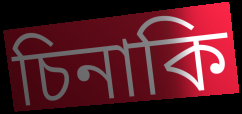
চিনাকি